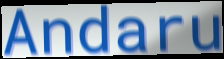
Andaru